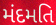
મંદમતિ